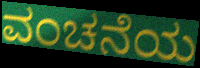
ವಂಚನೆಯ